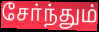
சேர்ந்தும்